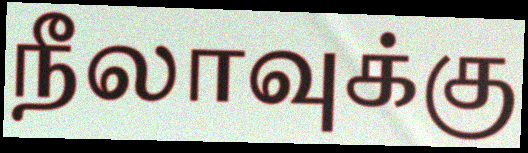
நீலாவுக்கு